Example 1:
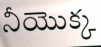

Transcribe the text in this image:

నీయొక్క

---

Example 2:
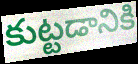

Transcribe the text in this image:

కుట్టడానికి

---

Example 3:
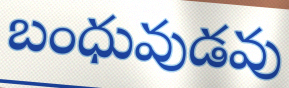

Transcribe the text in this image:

బంధువుడవు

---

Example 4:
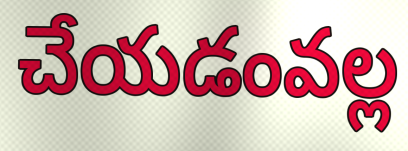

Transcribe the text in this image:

చేయడంవల్ల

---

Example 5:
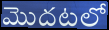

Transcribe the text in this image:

మొదటలో